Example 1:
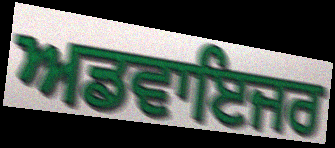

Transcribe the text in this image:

ਅਡਵਾਇਜਰ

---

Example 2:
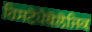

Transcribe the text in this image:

ਹਿਸਟੋਪੈਥੋਲੋਜਿਕ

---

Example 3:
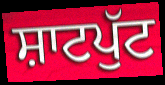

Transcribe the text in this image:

ਸ਼ਾਟਪੁੱਟ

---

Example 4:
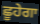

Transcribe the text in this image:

ਛੂਹੇਗਾ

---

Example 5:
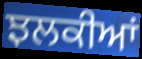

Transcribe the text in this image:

ਝਲਕੀਆਂ